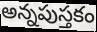
అన్నపుస్తకం